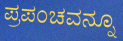
ಪ್ರಪಂಚವನ್ನೂ